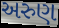
અરુણ